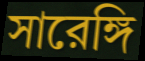
সারেঙ্গি